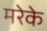
मरेके